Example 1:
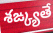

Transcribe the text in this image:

శఙ్క్యతే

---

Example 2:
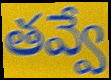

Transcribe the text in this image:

తవ్వే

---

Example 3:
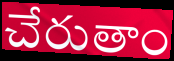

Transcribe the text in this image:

చేరుతాం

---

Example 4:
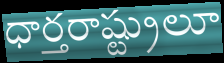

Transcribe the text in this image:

ధార్తరాష్ట్రులూ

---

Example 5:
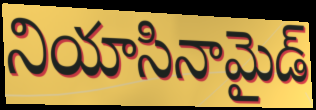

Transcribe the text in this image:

నియాసినామైడ్